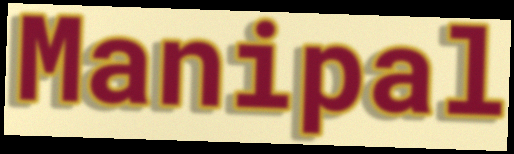
Manipal